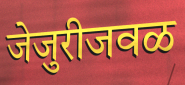
जेजुरीजवळ